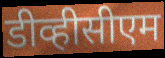
डीव्हीसीएम